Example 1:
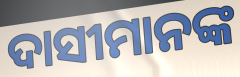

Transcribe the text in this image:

ଦାସୀମାନଙ୍କ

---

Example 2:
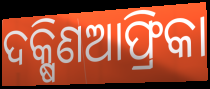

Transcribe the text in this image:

ଦକ୍ଷିଣଆଫ୍ରିକା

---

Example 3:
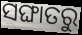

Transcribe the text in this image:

ସଙ୍ଘାତରୁ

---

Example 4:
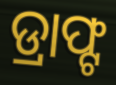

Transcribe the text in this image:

ଡ୍ରାଫ୍ଟ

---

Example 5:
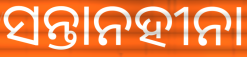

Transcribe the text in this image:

ସନ୍ତାନହୀନା